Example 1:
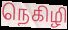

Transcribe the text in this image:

நெகிழி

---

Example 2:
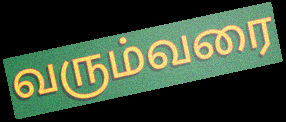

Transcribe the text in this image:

வரும்வரை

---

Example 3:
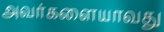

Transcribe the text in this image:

அவர்களையாவது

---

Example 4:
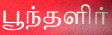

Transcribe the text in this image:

பூந்தளிர்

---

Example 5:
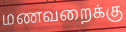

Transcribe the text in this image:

மணவறைக்கு